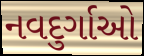
નવદુર્ગાઓ